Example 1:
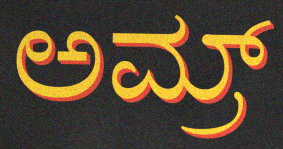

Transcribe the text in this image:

ಅಮ್ರ್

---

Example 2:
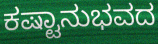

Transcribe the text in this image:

ಕಷ್ಟಾನುಭವದ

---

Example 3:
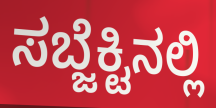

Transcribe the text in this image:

ಸಬ್ಜೆಕ್ಟಿನಲ್ಲಿ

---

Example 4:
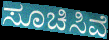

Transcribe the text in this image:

ಸೂಚಿಸಿವೆ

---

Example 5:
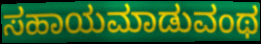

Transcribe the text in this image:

ಸಹಾಯಮಾಡುವಂಥ